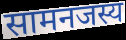
सामनजस्य